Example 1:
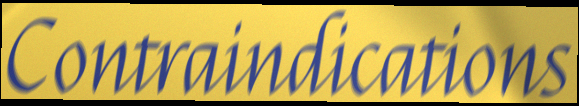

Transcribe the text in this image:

Contraindications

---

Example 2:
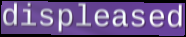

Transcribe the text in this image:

displeased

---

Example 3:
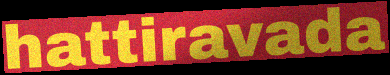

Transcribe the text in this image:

hattiravada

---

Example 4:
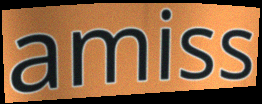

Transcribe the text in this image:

amiss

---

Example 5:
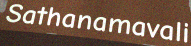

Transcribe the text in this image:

Sathanamavali